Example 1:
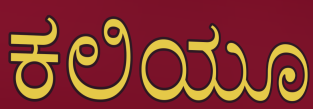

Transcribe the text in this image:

ಕಲಿಯೂ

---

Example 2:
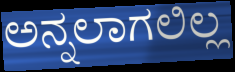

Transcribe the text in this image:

ಅನ್ನಲಾಗಲಿಲ್ಲ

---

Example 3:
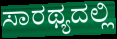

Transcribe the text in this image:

ಸಾರಥ್ಯದಲ್ಲಿ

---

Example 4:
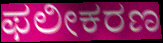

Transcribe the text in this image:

ಫಲೀಕರಣ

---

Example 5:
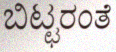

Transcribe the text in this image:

ಬಿಟ್ಟರಂತೆ